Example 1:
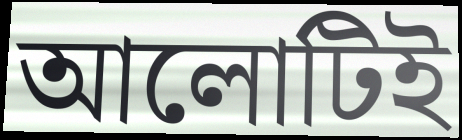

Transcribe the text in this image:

আলোটিই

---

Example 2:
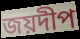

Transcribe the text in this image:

জয়দীপ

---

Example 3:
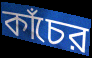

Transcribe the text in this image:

কাঁচের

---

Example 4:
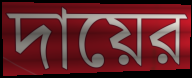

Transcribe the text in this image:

দায়ের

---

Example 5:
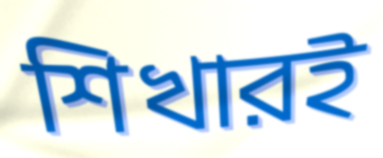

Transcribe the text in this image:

শিখারই